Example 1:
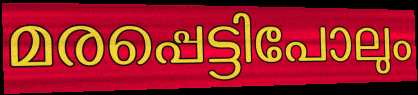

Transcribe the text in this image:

മരപ്പെട്ടിപോലും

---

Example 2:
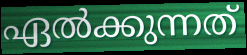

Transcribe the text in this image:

ഏൽക്കുന്നത്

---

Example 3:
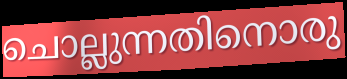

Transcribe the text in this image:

ചൊല്ലുന്നതിനൊരു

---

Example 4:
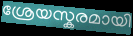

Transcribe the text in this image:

ശ്രേയസ്കരമായി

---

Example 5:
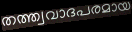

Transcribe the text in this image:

തത്ത്വവാദപരമായ